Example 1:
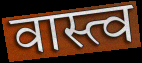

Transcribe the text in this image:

वास्त्व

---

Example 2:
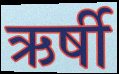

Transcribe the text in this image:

ऋर्षी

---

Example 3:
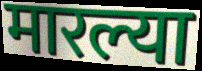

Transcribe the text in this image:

मारल्या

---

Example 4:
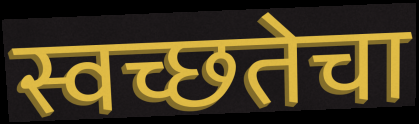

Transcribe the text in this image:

स्वच्छतेचा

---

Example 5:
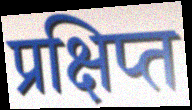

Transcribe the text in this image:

प्रक्षिप्त